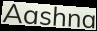
Aashna